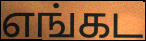
எங்கட